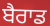
ਬੈਰਾਡ